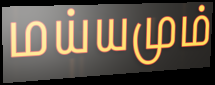
மய்யமும்